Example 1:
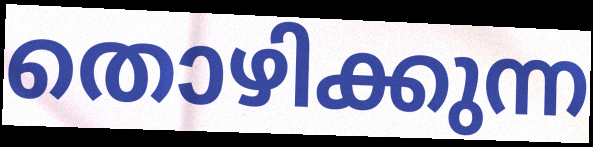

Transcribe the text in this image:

തൊഴിക്കുന്ന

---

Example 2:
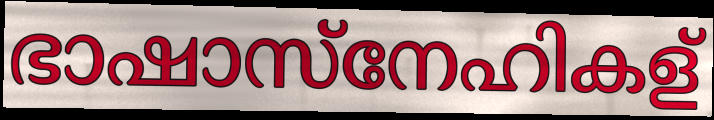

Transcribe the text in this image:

ഭാഷാസ്നേഹികള്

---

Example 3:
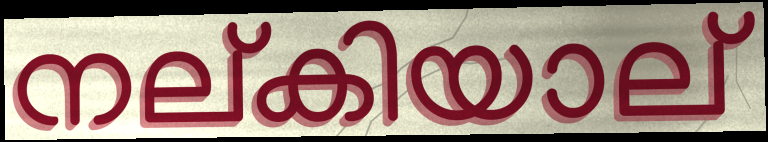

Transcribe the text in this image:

നല്കിയാല്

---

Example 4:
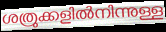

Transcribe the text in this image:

ശത്രുക്കളിൽനിന്നുള്ള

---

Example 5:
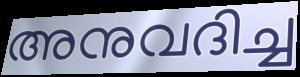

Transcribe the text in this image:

അനുവദിച്ച